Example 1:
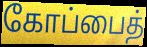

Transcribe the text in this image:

கோப்பைத்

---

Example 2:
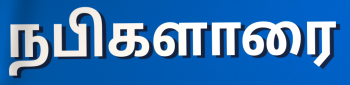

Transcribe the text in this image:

நபிகளாரை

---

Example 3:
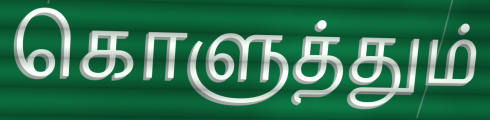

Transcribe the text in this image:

கொளுத்தும்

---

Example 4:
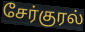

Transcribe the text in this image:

சேர்குரல்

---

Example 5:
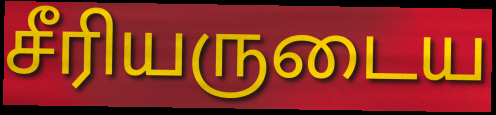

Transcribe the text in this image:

சீரியருடைய